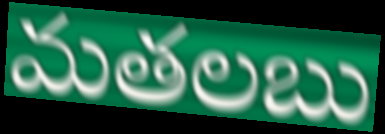
మతలబు